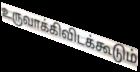
உருவாக்கிவிடக்கூடும்